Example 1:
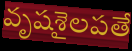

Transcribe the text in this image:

వృషశైలపతే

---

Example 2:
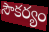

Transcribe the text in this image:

సౌకర్యం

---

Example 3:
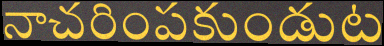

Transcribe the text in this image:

నాచరింపకుండుట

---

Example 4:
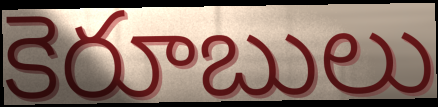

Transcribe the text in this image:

కెరూబులు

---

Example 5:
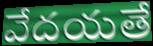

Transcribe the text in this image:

వేదయతే